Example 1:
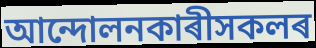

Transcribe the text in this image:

আন্দোলনকাৰীসকলৰ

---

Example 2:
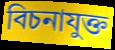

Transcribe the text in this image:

বিচনাযুক্ত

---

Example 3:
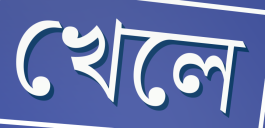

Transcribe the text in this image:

খেলে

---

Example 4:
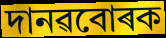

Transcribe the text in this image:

দানৱবোৰক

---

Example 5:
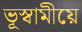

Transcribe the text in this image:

ভূস্বামীয়ে